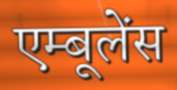
एम्बूलेंस